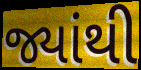
જ્યાંથી